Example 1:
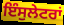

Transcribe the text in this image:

ਇੰਸੁਲੇਟਰਾਂ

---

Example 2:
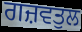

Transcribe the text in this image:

ਗਜ਼ਵਤੁਲ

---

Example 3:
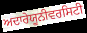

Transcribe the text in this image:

ਅਦਾਰੇਯੂਨੀਵਰਸਿਟੀ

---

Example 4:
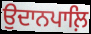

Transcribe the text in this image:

ਉਦਾਨਪਾਲ਼ਿ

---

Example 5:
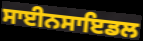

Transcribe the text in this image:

ਸਾਈਨਸਾਇਡਲ